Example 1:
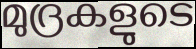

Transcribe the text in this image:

മുദ്രകളുടെ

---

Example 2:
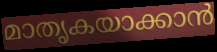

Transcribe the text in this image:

മാതൃകയാക്കാൻ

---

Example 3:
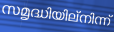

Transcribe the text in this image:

സമൃദ്ധിയില്നിന്ന്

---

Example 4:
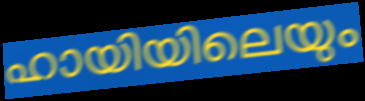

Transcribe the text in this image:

ഹായിയിലെയും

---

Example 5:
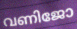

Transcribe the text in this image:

വണിജോ